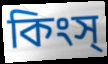
কিংস্